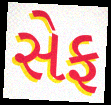
સેફ